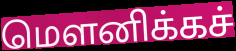
மௌனிக்கச்